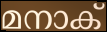
മനാക്